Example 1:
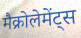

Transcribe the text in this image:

मैक्रोलेमेंट्स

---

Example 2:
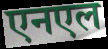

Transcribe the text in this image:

एनएल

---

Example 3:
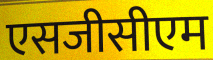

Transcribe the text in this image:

एसजीसीएम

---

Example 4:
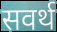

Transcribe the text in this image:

सवर्थ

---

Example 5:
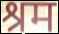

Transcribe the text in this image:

श्रम